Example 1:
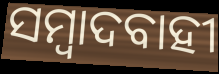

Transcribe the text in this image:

ସମ୍ବାଦବାହୀ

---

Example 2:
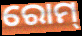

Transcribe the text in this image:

ରୋମ୍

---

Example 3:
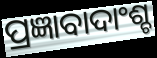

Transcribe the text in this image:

ପ୍ରଜ୍ଞାବାଦାଂଶ୍ଚ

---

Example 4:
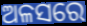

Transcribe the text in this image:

ଅଳସରେ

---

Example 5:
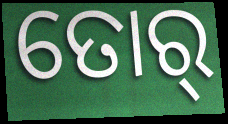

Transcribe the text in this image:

ତୋର୍